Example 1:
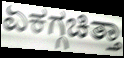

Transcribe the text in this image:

ಏಕಗ್ಗಚಿತ್ತಾ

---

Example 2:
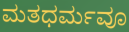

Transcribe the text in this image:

ಮತಧರ್ಮವೂ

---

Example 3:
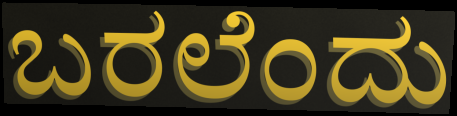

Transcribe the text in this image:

ಬರಲೆಂದು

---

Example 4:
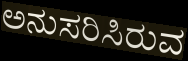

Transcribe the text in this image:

ಅನುಸರಿಸಿರುವ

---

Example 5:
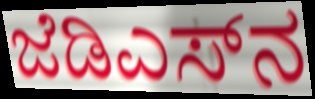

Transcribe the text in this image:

ಜೆಡಿಎಸ್‌ನ